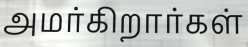
அமர்கிறார்கள்